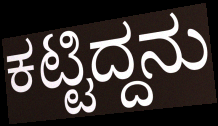
ಕಟ್ಟಿದ್ದನು